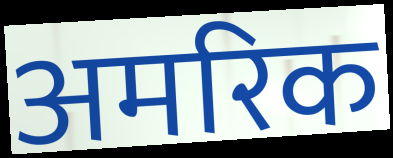
अमरिक